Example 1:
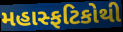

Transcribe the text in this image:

મહાસ્ફટિકોથી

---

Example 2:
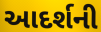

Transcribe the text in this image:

આદર્શની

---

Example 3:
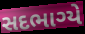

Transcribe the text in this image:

સદભાગ્યે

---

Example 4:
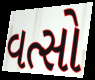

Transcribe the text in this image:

વત્સો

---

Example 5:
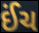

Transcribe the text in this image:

ઈંચ